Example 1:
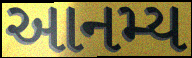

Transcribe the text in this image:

આનમ્ય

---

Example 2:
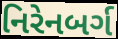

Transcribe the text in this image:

નિરેનબર્ગ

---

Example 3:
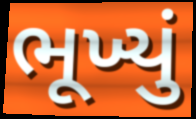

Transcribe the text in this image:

ભૂખ્યું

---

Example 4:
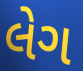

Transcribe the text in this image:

લેગ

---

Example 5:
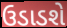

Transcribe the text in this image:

ઉડાડશે